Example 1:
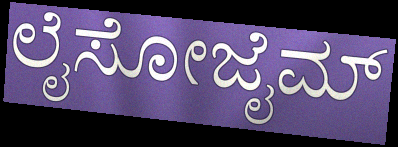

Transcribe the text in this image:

ಲೈಸೋಜೈಮ್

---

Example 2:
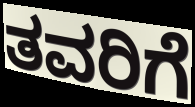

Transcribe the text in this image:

ತವರಿಗೆ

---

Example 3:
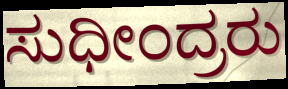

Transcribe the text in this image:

ಸುಧೀಂದ್ರರು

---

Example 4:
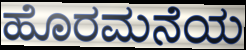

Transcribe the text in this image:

ಹೊರಮನೆಯ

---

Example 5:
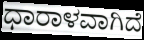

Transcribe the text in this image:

ಧಾರಾಳವಾಗಿದೆ